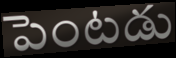
పెంటడు